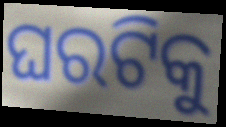
ଘରଟିକୁ